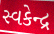
સ્વકેન્દ્ર